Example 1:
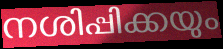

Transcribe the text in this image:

നശിപ്പിക്കയും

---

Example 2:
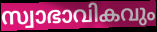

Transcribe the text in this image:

സ്വാഭാവികവും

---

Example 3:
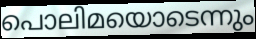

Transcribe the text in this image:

പൊലിമയൊടെന്നും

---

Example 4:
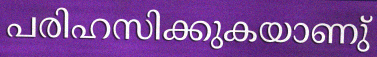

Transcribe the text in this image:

പരിഹസിക്കുകയാണു്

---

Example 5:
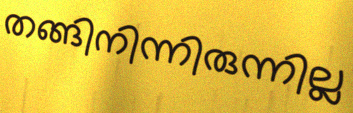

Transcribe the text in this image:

തങ്ങിനിന്നിരുന്നില്ല